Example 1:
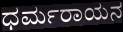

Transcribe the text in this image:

ಧರ್ಮರಾಯನ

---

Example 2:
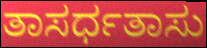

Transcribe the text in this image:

ತಾಸರ್ಧತಾಸು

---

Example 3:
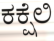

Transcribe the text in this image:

ಕಕ್ಷೆಲಿ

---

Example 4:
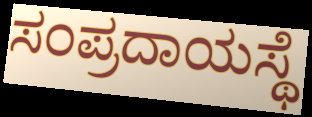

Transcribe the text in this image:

ಸಂಪ್ರದಾಯಸ್ಥೆ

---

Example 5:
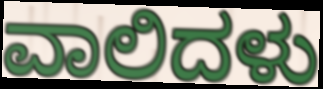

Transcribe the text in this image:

ವಾಲಿದಳು